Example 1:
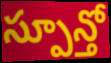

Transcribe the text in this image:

స్పూన్తో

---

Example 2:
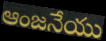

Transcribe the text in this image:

ఆంజనేయు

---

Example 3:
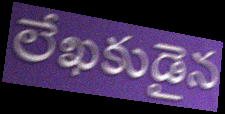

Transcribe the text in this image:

లేఖకుడైన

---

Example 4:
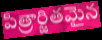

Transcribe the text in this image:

పిత్రార్జితమైన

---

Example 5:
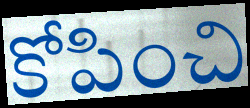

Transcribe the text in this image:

కోపించి